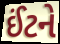
ઈંટને